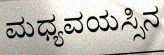
ಮಧ್ಯವಯಸ್ಸಿನ